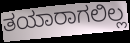
ತಯಾರಾಗಲಿಲ್ಲ